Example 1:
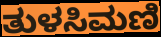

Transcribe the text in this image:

ತುಳಸಿಮಣಿ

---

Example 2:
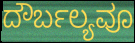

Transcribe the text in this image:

ದೌರ್ಬಲ್ಯವೂ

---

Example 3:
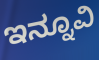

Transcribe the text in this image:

ಇನ್ನೂವಿ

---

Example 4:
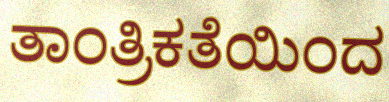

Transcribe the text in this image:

ತಾಂತ್ರಿಕತೆಯಿಂದ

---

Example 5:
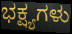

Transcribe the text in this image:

ಭಕ್ಷ್ಯಗಳು